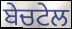
ਬੇਚਟੇਲ